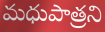
మధుపాత్రని